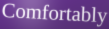
Comfortably